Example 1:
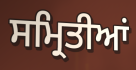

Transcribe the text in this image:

ਸਮ੍ਰਿਤੀਆਂ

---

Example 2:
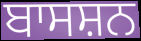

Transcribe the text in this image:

ਬਾਸਸ਼ਨ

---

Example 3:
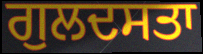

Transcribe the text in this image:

ਗੁਲਦਸਤਾ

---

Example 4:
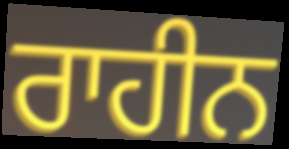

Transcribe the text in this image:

ਰਾਹੀਨ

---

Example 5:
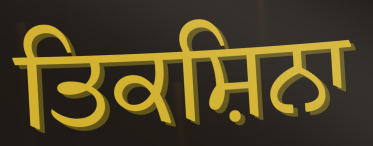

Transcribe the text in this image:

ਤਿਕਸ਼ਿਨਾ